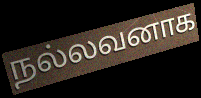
நல்லவனாக